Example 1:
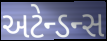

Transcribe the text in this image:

અટેન્ડન્સ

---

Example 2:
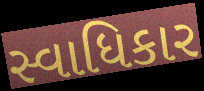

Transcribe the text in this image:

સ્વાધિકાર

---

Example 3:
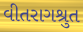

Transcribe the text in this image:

વીતરાગશ્રુત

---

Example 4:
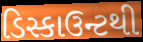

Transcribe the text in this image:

ડિસ્કાઉન્ટથી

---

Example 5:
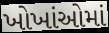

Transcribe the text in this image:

ખોખાંઓમાં